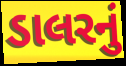
ડાલરનું